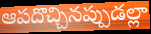
ఆపదొచ్చినప్పుడల్లా